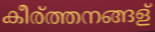
കീര്ത്തനങ്ങള്